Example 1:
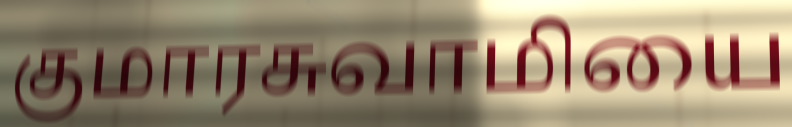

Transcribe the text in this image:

குமாரசுவாமியை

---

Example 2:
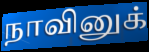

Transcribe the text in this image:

நாவினுக்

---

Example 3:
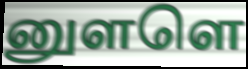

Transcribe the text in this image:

னுளளெ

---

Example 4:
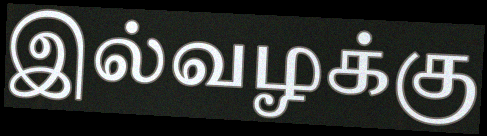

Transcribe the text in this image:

இல்வழக்கு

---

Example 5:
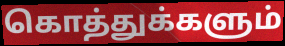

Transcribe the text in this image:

கொத்துக்களும்